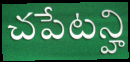
చపేటన్హి